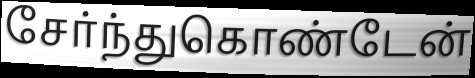
சேர்ந்துகொண்டேன்